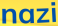
nazi